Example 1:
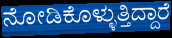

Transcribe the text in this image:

ನೋಡಿಕೊಳ್ಳುತ್ತಿದ್ದಾರೆ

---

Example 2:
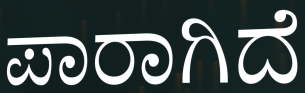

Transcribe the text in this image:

ಪಾರಾಗಿದೆ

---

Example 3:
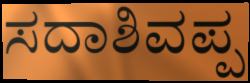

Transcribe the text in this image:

ಸದಾಶಿವಪ್ಪ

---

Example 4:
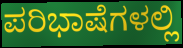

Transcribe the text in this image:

ಪರಿಭಾಷೆಗಳಲ್ಲಿ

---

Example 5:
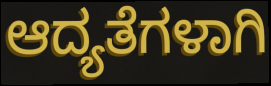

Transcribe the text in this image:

ಆದ್ಯತೆಗಳಾಗಿ